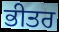
ਭੀਤਰ